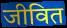
जीवित